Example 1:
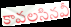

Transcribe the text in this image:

కావలసినవీ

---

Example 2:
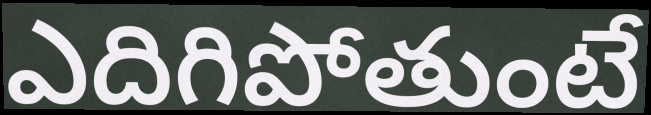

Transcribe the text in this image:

ఎదిగిపోతుంటే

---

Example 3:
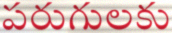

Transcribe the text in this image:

పరుగులకు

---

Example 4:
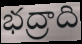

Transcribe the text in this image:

భద్రాది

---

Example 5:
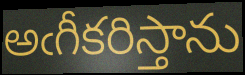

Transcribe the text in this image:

అఁగీకరిస్తాను